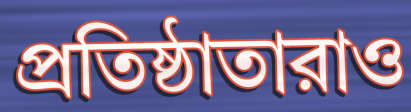
প্রতিষ্ঠাতারাও